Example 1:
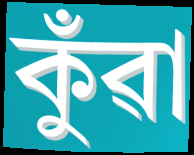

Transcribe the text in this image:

কুঁৱা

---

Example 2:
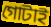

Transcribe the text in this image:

গোটাই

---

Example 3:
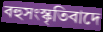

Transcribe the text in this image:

বহুসংস্কৃতিবাদে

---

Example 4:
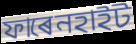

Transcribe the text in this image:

ফাৰেনহাইট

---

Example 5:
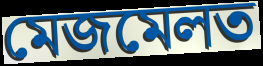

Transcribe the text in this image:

মেজমেলত